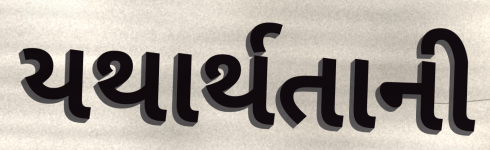
યથાર્થતાની